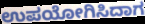
ಉಪಯೋಗಿಸಿದಾಗ